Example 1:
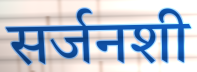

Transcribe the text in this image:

सर्जनशी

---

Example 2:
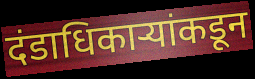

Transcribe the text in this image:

दंडाधिकाऱ्यांकडून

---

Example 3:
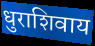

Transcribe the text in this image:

धुराशिवाय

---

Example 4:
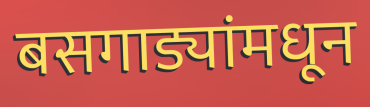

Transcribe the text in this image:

बसगाड्यांमधून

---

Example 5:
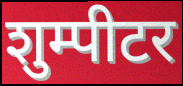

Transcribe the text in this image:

शुम्पीटर